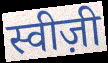
स्वीज़ी